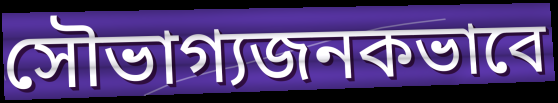
সৌভাগ্যজনকভাবে